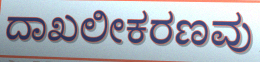
ದಾಖಲೀಕರಣವು